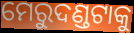
ମେରୁଦଣ୍ଡଟାକୁ